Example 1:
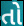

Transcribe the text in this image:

તો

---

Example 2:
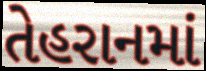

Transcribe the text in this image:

તેહરાનમાં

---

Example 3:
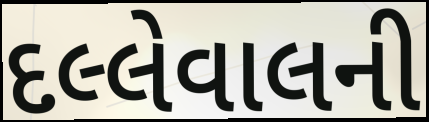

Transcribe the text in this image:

દલ્લેવાલની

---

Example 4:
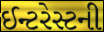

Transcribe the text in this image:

ઈન્ટરેસ્ટની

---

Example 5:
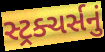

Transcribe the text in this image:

સ્ટ્રક્ચર્સનું